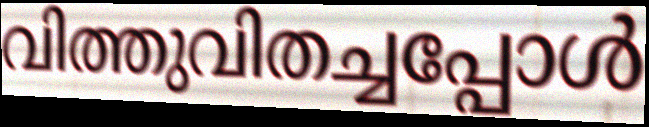
വിത്തുവിതച്ചപ്പോൾ